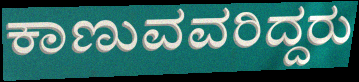
ಕಾಣುವವರಿದ್ದರು